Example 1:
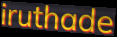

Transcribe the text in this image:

iruthade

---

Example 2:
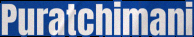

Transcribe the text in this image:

Puratchimani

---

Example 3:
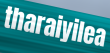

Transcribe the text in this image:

tharaiyilea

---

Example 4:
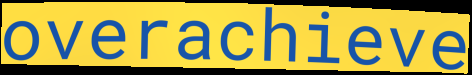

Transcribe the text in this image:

overachieve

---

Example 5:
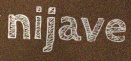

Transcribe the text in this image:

nijave